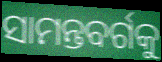
ସାମନ୍ତବର୍ଗକୁ